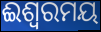
ଈଶ୍ଵରମୟ